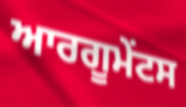
ਆਰਗੂਮੇੰਟਸ